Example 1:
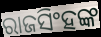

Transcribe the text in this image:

ରାଜସିଂହଙ୍କ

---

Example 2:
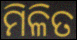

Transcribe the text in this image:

ମିଳିତ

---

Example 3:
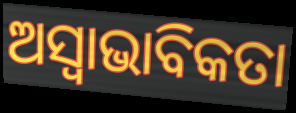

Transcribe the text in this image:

ଅସ୍ୱାଭାବିକତା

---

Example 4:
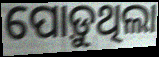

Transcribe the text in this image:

ପୋଡ଼ୁଥିଲା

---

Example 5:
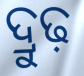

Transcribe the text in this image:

ଦ୍ରୁଢ଼